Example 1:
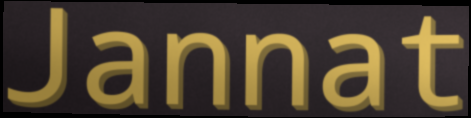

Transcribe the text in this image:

Jannat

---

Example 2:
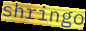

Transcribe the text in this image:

shringo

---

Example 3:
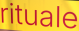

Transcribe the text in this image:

rituale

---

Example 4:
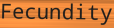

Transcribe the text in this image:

Fecundity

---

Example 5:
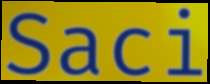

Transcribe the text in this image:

Saci